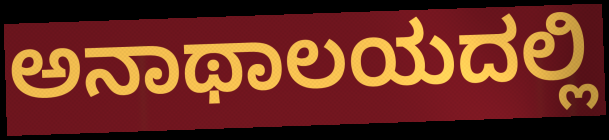
ಅನಾಥಾಲಯದಲ್ಲಿ